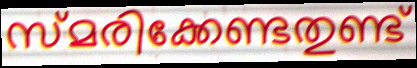
സ്മരിക്കേണ്ടതുണ്ട്